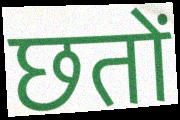
छतों